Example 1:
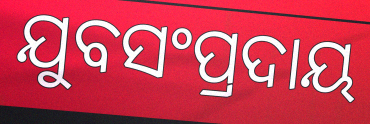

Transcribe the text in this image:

ଯୁବସଂପ୍ରଦାୟ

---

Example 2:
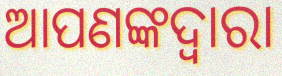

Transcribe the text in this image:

ଆପଣଙ୍କଦ୍ଵାରା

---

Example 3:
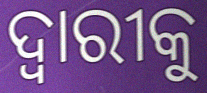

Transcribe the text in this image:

ଦ୍ଵାରୀକୁ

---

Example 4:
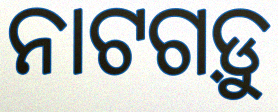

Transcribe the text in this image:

ନାଟଗଡ଼ୁ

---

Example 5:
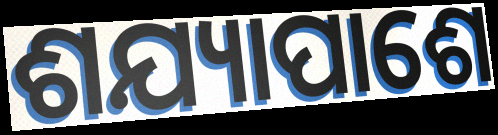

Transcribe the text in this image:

ଶଯ୍ୟାପାଶେ